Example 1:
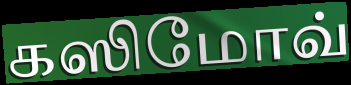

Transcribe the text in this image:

கஸிமோவ்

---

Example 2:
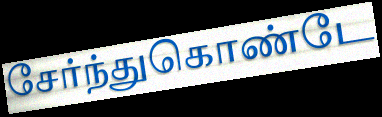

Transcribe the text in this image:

சேர்ந்துகொண்டே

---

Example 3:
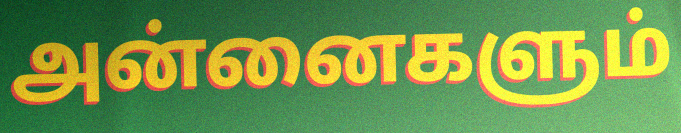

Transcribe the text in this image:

அன்னைகளும்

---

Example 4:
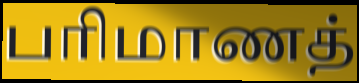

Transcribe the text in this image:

பரிமாணத்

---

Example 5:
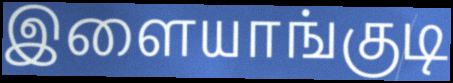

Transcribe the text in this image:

இளையாங்குடி